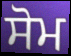
ਸੋਮ